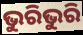
ଭୁରିଭୁରି